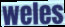
weles